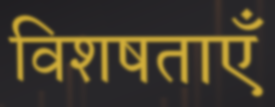
विशषताएँ